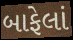
બાફેલાં